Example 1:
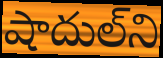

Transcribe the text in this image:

షాదుల్‌ని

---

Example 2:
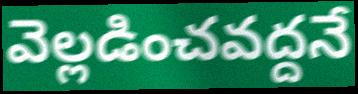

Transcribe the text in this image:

వెల్లడించవద్దనే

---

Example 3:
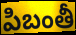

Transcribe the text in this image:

పిబంతీ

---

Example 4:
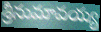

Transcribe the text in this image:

శ్రీనుమావయ్య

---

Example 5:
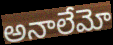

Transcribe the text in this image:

అనాలేమో